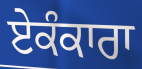
ਏਕੰਕਾਰਾ